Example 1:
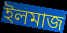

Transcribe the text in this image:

ইলমাজ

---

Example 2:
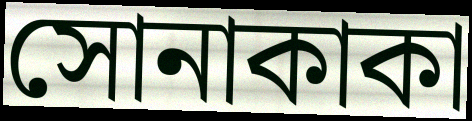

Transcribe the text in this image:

সোনাকাকা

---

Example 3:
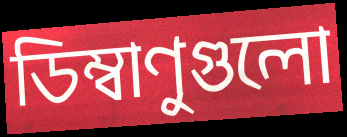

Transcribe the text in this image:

ডিম্বাণুগুলো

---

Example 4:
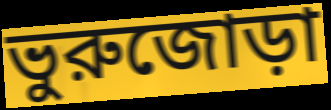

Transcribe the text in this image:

ভুরুজোড়া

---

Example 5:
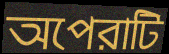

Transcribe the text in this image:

অপেরাটি